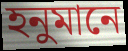
হনুমানে